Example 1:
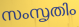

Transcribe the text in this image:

സംസൃതിം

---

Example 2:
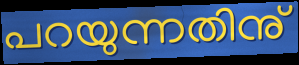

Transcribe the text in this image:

പറയുന്നതിനു്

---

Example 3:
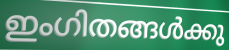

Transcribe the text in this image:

ഇംഗിതങ്ങൾക്കു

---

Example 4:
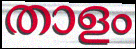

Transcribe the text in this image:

താളം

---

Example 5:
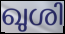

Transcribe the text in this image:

ഖുശി